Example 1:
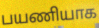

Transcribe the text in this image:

பயணியாக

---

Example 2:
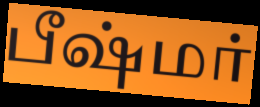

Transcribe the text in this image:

பீஷ்மர்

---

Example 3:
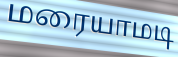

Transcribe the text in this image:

மரையாமடி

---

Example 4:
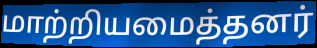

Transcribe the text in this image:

மாற்றியமைத்தனர்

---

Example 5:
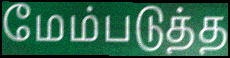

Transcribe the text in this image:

மேம்படுத்த